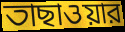
তাছাওয়ার